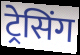
ट्रेसिंग